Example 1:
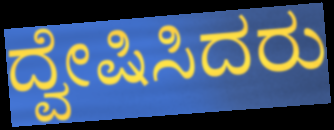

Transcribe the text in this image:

ದ್ವೇಷಿಸಿದರು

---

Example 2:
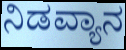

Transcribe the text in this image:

ನಿಡವ್ಯಾನ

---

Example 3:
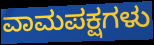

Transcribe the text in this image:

ವಾಮಪಕ್ಷಗಳು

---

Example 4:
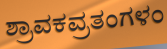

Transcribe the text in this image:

ಶ್ರಾವಕವ್ರತಂಗಳಂ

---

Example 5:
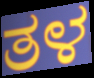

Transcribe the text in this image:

ತಳ